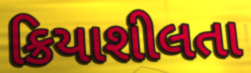
ક્રિયાશીલતા